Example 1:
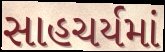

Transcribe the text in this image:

સાહચર્યમાં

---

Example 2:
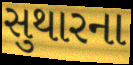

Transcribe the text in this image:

સુથારના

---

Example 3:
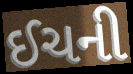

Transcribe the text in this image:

ઈચની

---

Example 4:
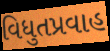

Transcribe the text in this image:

વિધુતપ્રવાહ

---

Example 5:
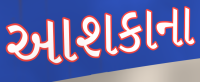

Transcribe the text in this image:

આશકાના